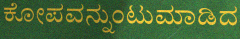
ಕೋಪವನ್ನುಂಟುಮಾಡಿದ